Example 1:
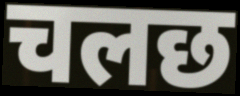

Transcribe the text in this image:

चलछ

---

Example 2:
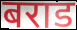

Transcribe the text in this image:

बराड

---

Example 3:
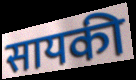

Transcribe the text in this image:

सायकी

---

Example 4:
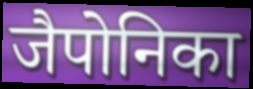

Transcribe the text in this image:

जैपोनिका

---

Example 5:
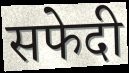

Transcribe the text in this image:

सफेदी